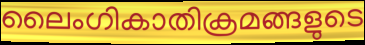
ലൈംഗികാതിക്രമങ്ങളുടെ